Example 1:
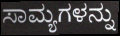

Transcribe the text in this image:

ಸಾಮ್ಯಗಳನ್ನು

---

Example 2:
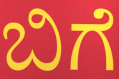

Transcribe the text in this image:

ಬಿಗೆ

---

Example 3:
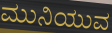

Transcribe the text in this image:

ಮುನಿಯುವ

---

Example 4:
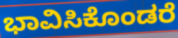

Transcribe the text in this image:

ಭಾವಿಸಿಕೊಂಡರೆ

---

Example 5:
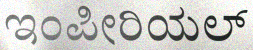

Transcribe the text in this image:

ಇಂಪೀರಿಯಲ್